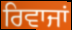
ਰਿਵਾਜਾਂ